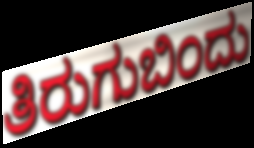
ತಿರುಗುಬಿಂದು